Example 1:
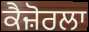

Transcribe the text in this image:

ਕੈਜ਼ੋਰਲਾ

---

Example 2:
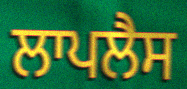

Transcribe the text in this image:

ਲਾਪਲੈਸ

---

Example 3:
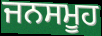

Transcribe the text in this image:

ਜਨਸਮੂਹ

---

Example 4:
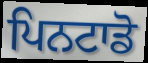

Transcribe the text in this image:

ਪਿਨਟਾਡੋ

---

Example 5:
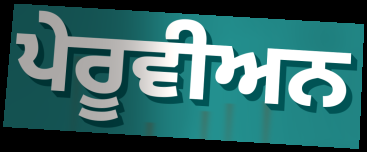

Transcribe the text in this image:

ਪੇਰੂਵੀਅਨ